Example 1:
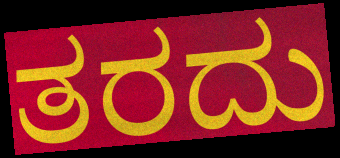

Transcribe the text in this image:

ತರದು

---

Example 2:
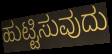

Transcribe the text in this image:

ಹುಟ್ಟಿಸುವುದು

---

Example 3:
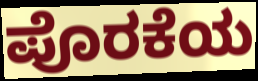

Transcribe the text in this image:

ಪೊರಕೆಯ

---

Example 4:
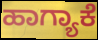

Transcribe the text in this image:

ಹಾಗ್ಯಾಕೆ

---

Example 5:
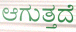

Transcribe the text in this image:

ಆಗುತ್ತದೆ